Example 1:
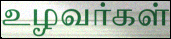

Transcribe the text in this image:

உழவர்கள்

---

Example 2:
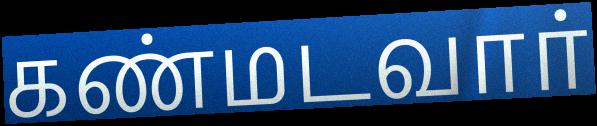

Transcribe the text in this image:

கண்மடவார்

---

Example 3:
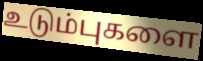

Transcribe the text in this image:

உடும்புகளை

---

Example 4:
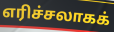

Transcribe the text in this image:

எரிச்சலாகக்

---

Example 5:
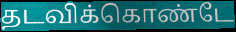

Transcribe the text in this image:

தடவிக்கொண்டே